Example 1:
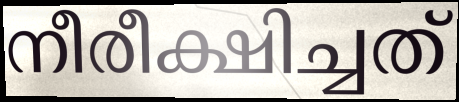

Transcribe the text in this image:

നീരീക്ഷിച്ചത്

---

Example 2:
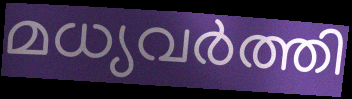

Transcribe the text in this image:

മധ്യവർത്തി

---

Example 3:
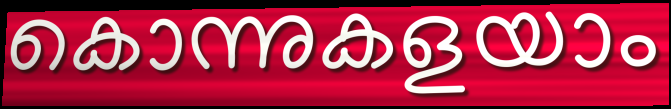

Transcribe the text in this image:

കൊന്നുകളയാം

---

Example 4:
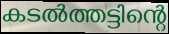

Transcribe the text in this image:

കടൽത്തട്ടിന്റെ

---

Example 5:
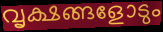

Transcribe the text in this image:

വൃക്ഷങ്ങളോടും